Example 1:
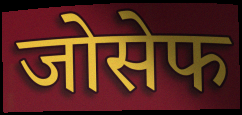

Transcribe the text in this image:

जोसेफ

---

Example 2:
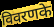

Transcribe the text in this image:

विवरणके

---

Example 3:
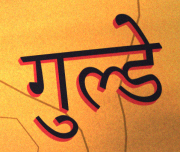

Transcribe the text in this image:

गुल्डे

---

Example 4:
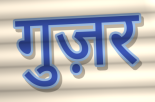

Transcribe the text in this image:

गुज़र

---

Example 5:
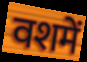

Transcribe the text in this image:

वशमें